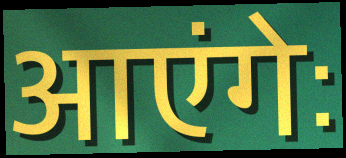
आएंगेः